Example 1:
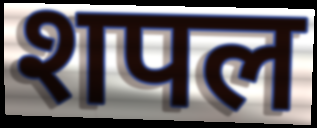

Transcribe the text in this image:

शपल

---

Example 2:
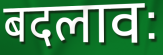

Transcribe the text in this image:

बदलावः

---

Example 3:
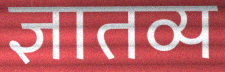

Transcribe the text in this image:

ज्ञातव्य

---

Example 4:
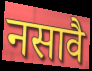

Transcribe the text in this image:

नसावै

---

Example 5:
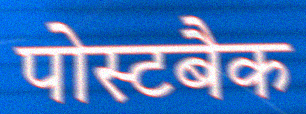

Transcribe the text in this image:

पोस्टबैक